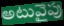
అటువైపు